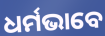
ଧର୍ମଭାବେ